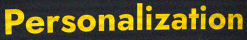
Personalization